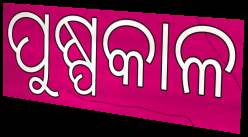
ପୁଷ୍ପକାଳ